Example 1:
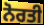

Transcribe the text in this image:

ਨੋਰਤੀ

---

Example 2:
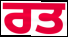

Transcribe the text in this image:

ਰਤ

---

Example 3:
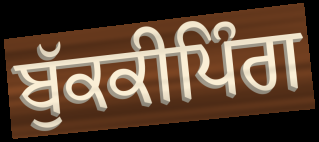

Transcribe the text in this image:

ਬੁੱਕਕੀਪਿੰਗ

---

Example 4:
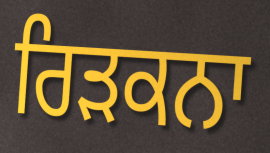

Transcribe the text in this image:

ਰਿੜਕਨਾ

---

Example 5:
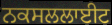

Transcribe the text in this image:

ਨਕਸਲਲਾਈਟ